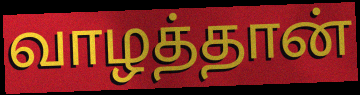
வாழத்தான்